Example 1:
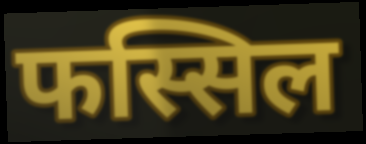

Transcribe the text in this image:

फस्सिल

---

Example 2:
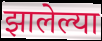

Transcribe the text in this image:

झालेल्या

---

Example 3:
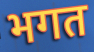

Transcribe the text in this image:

भगत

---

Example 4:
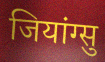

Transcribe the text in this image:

जियांग्सु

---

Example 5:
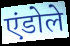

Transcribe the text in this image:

एंडोले